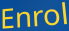
Enrol